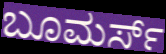
ಬೂಮರ್ಸ್